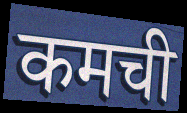
कमची